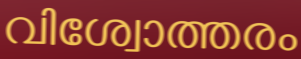
വിശ്വോത്തരം